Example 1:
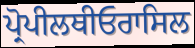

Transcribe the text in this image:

ਪ੍ਰੋਪੀਲਥੀਓਰਾਸਿਲ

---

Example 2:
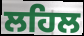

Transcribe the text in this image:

ਲਹਿਲ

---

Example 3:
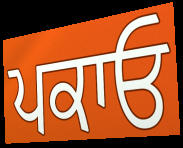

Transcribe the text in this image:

ਪਕਾਓ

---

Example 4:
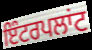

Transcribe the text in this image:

ਇੰਟਰਪਲਾਂਟ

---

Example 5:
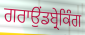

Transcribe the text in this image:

ਗਰਾਉਂਡਬ੍ਰੇਕਿੰਗ